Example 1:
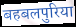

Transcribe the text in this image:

बहबलपुरिया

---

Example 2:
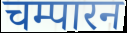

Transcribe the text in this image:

चम्पारन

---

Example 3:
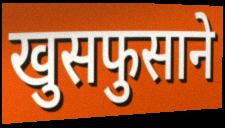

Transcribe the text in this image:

खुसफुसाने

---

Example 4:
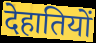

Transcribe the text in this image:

देहातियों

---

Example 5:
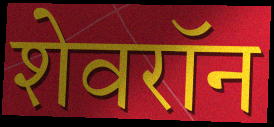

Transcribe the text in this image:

शेवरॉन